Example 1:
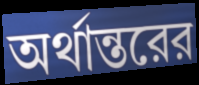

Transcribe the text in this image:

অর্থান্তরের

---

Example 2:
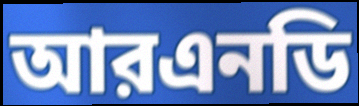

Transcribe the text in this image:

আরএনডি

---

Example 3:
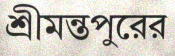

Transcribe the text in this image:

শ্রীমন্তপুরের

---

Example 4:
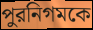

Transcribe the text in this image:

পুরনিগমকে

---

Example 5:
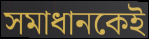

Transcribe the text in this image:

সমাধানকেই